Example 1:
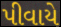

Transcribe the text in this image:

પીવાયે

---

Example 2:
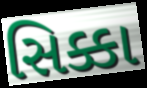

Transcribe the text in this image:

સિક્કા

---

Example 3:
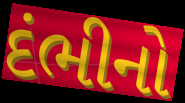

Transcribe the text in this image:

દંભીનો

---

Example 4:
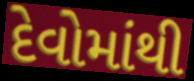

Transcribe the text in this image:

દેવોમાંથી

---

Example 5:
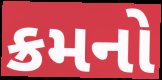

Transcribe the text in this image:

ક્રમનો